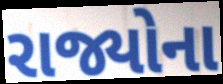
રાજ્યોના